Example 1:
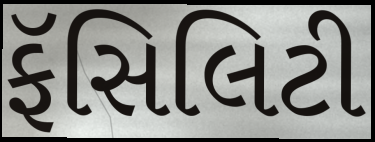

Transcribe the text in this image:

ફૅસિલિટી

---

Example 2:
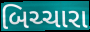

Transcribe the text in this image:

બિચ્ચારા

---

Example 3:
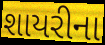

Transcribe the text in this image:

શાયરીના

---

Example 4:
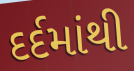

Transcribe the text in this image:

દર્દમાંથી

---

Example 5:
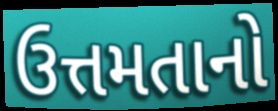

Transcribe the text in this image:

ઉત્તમતાનો